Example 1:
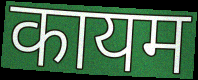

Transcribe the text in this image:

कायम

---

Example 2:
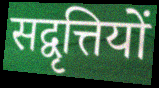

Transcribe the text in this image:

सद्वृत्तियों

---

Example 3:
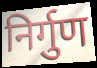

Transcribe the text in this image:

निर्गुण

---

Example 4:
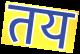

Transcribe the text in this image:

तय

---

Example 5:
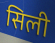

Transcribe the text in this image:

सिली